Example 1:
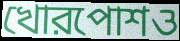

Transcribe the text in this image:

খোরপোশও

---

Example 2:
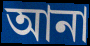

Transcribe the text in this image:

আনা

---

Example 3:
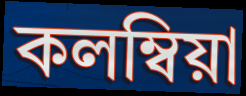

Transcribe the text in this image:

কলম্বিয়া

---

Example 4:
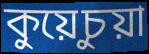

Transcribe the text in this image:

কুয়েচুয়া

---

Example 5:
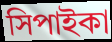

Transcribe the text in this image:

সিপাইকা